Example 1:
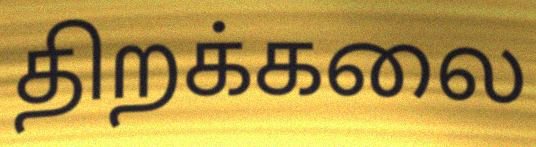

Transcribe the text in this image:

திறக்கலை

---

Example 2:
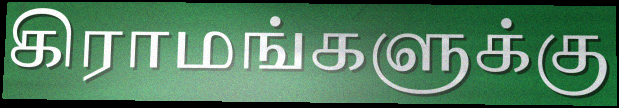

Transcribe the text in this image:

கிராமங்களுக்கு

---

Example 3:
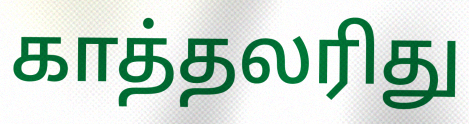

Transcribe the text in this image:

காத்தலரிது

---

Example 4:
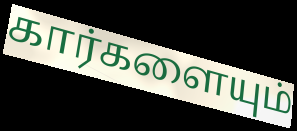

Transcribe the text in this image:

கார்களையும்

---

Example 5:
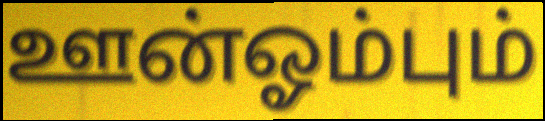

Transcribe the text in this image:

ஊன்ஓம்பும்